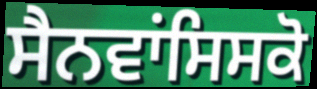
ਸੈਨਵਾਂਸਿਸਕੋ